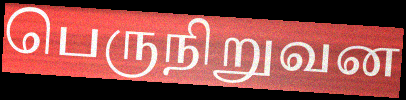
பெருநிறுவன